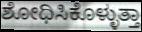
ಶೋಧಿಸಿಕೊಳ್ಳುತ್ತಾ